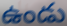
ఉండు